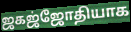
ஜகஜ்ஜோதியாக